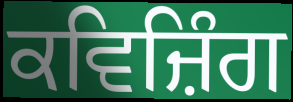
ਕਵਿਜ਼ਿੰਗ